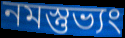
নমস্তুভ্যং